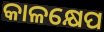
କାଳକ୍ଷେପ